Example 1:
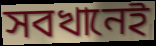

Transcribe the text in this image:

সবখানেই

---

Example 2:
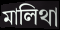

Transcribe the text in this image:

মালিথা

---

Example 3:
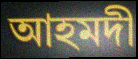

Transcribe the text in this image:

আহমদী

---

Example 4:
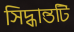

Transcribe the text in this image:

সিদ্ধান্তটি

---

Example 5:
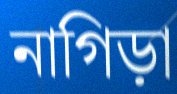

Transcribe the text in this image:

নাগিড়া